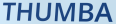
THUMBA